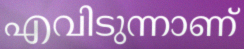
എവിടുന്നാണ്